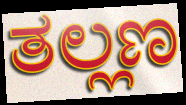
ತಲ್ಲಣ